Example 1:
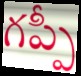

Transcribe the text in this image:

గప్పీ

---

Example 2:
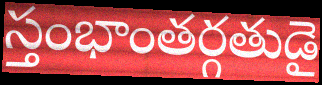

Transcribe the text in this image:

స్తంభాంతర్గతుడై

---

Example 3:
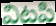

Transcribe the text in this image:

విటపి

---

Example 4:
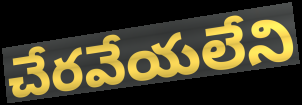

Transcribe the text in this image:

చేరవేయలేని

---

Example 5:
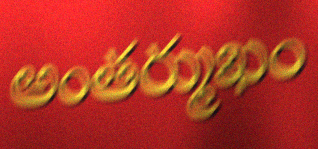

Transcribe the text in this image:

అంతర్ముఖం